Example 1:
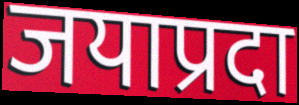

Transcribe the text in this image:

जयाप्रदा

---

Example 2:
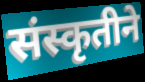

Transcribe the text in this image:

संस्कृतीने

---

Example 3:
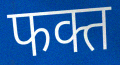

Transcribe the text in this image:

फक्त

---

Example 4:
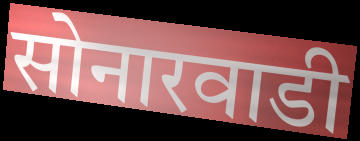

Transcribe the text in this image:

सोनारवाडी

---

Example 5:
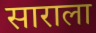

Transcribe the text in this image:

साराला